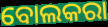
ବୋଲକରା